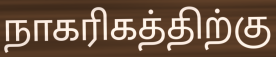
நாகரிகத்திற்கு